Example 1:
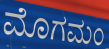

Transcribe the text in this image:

ಮೊಗಮಂ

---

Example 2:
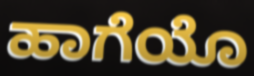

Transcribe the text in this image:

ಹಾಗೆಯೊ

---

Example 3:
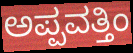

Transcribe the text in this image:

ಅಪ್ಪವತ್ತಿಂ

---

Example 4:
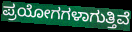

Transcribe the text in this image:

ಪ್ರಯೋಗಗಳಾಗುತ್ತಿವೆ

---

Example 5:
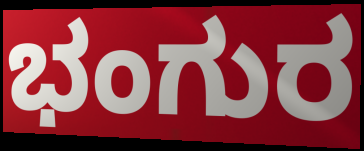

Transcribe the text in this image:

ಭಂಗುರ